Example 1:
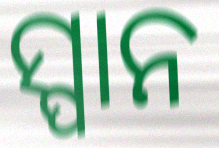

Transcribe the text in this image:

ସ୍ପାନ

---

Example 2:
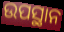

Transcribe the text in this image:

ଉପସ୍ଥାନ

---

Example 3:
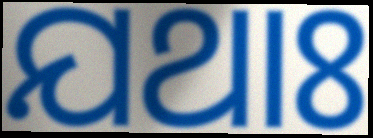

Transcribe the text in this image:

ଯଥାଃ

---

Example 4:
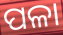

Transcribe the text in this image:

ପଳା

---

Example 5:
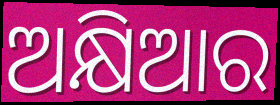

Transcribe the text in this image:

ଅକ୍ଷିଆର